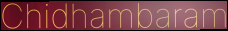
Chidhambaram